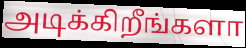
அடிக்கிறீங்களா